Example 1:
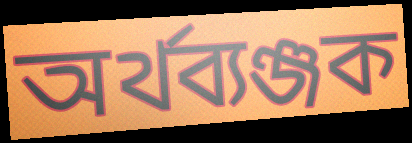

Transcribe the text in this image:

অৰ্থব্যঞ্জক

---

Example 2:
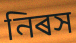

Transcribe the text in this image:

নিৰস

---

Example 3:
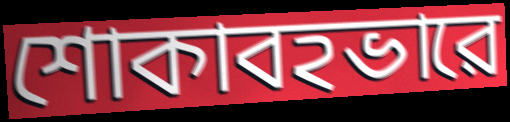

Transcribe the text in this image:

শোকাবহভাৱে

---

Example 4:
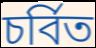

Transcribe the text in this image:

চৰ্বিত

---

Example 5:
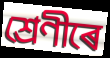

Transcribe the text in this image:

শ্ৰেণীৰে